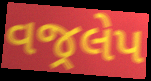
વજ્રલેપ